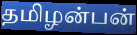
தமிழன்பன்